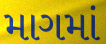
માગમાં